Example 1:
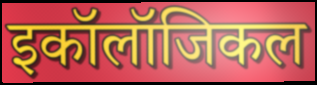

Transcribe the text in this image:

इकॉलॉजिकल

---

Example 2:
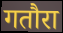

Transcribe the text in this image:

गतौरा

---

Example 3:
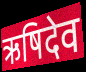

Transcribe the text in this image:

ऋषिदेव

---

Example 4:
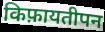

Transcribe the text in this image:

किफ़ायतीपन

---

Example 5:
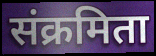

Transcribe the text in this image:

संक्रमिता